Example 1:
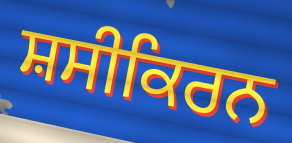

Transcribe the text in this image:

ਸ਼ਸੀਕਿਰਨ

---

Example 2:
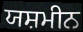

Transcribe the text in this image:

ਯਸ਼ਮੀਨ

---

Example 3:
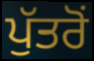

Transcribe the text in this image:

ਪੁੱਤਰੋਂ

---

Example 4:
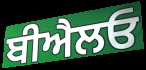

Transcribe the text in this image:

ਬੀਐਲਓ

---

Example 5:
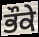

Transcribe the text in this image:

ਭੌਕੇ